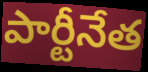
పార్టీనేత